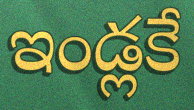
ఇండ్లకే